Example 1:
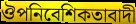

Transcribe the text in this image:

ঔপনিবেশিকতাবাদী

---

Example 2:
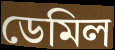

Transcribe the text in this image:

ডেমিল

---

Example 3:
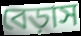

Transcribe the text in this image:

বেড়াস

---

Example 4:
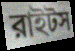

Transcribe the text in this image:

রাইটস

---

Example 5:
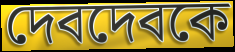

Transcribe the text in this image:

দেবদেবকে